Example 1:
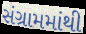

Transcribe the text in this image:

સંગ્રામમાંથી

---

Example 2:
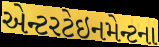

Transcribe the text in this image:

એન્ટરટેઇનમેન્ટના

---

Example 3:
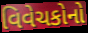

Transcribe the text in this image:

વિવેચકોનો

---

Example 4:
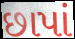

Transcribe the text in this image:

છાપાં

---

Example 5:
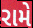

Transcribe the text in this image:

રામે